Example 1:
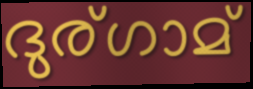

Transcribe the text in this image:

ദുര്ഗാമ്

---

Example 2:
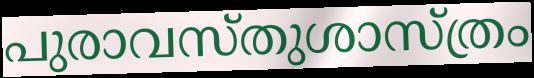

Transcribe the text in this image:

പുരാവസ്തുശാസ്ത്രം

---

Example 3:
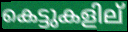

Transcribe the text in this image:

കെട്ടുകളില്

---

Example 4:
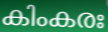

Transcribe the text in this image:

കിംകരഃ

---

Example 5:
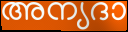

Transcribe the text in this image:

അന്യദാ